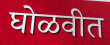
घोळवीत